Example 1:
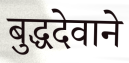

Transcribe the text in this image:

बुद्धदेवाने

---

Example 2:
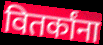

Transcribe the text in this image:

वितर्कांना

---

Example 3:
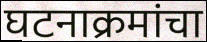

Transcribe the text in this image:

घटनाक्रमांचा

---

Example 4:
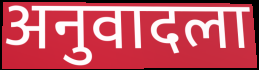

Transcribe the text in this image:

अनुवादला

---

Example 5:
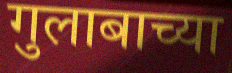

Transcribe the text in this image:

गुलाबाच्या